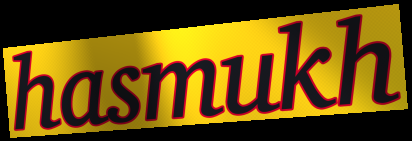
hasmukh